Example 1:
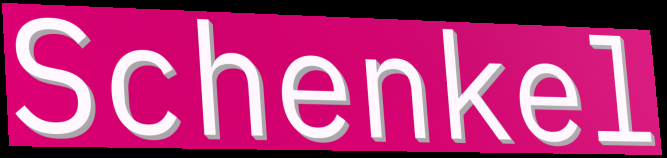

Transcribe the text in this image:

Schenkel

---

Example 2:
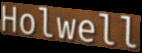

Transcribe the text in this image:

Holwell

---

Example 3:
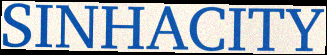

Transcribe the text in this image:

SINHACITY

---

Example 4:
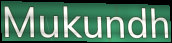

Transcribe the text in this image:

Mukundh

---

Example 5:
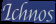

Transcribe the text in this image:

Ichnos